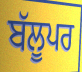
ਬੱਲੂਪਰ